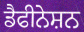
ਡੈਫੀਨੇਸ਼ਨ